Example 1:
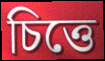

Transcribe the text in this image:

চিত্তে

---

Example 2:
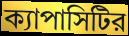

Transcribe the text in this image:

ক্যাপাসিটির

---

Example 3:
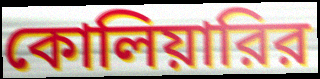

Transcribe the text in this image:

কোলিয়ারির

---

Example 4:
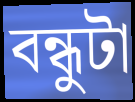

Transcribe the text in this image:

বন্ধুটা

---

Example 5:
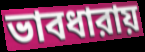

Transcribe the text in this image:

ভাবধারায়